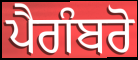
ਪੈਗੰਬਰੋ